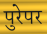
पुरेपर